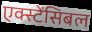
एक्स्टेंसिबल